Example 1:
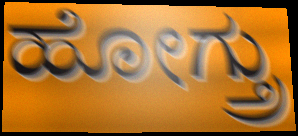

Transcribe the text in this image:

ಹೋಗ್ತ್ರು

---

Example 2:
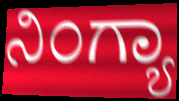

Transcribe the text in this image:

ನಿಂಗ್ಯಾ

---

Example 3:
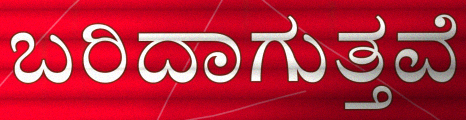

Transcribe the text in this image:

ಬರಿದಾಗುತ್ತವೆ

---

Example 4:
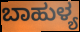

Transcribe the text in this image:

ಬಾಹುಳ್ಯ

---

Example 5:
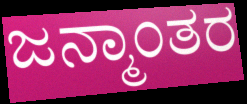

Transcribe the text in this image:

ಜನ್ಮಾಂತರ